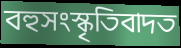
বহুসংস্কৃতিবাদত